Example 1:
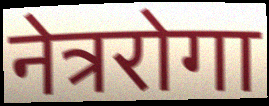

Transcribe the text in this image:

नेत्ररोगा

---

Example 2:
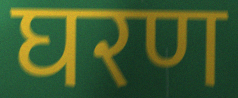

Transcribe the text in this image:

घरण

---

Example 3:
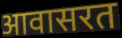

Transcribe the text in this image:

आवासरत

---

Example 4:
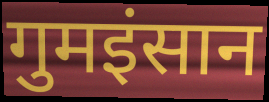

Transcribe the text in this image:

गुमइंसान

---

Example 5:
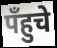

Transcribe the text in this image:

पँहुचे